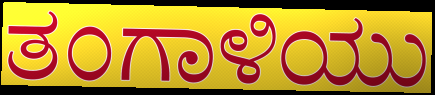
ತಂಗಾಳಿಯು